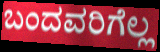
ಬಂದವರಿಗೆಲ್ಲ